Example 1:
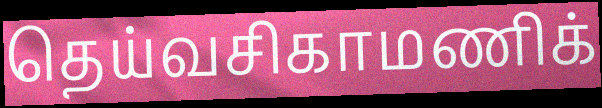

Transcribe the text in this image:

தெய்வசிகாமணிக்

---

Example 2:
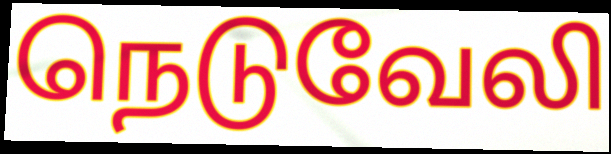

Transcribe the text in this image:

நெடுவேலி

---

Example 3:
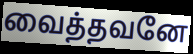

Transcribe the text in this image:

வைத்தவனே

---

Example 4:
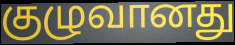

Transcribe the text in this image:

குழுவானது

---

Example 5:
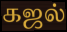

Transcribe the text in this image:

கஜல்